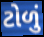
ટોળું